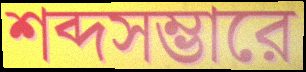
শব্দসম্ভারে